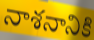
నాశనానికి